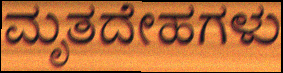
ಮೃತದೇಹಗಳು